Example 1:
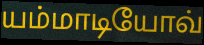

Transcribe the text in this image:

யம்மாடியோவ்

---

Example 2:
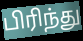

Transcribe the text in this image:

பிரிந்து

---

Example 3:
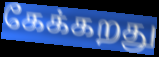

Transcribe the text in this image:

கேக்கறது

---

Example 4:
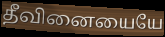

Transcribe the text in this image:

தீவினையையே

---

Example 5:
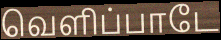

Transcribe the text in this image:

வெளிப்பாடே